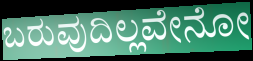
ಬರುವುದಿಲ್ಲವೇನೋ